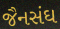
જૈનસંઘ